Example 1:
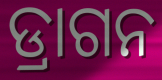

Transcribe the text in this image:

ଡ୍ରାଗନ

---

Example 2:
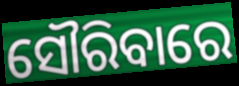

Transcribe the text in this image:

ସୌରିବାରେ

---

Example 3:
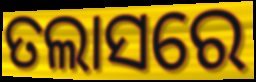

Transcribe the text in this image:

ତଲାସରେ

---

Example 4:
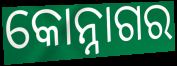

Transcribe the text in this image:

କୋନ୍ନାଗର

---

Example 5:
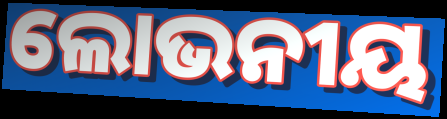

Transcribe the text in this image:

ଲୋଭନୀୟ